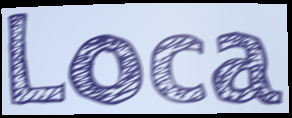
Loca